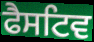
ਫੈਸਟਿਵ